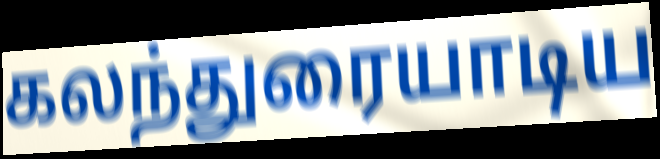
கலந்துரையாடிய